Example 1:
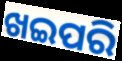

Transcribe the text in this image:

ଖଇପରି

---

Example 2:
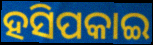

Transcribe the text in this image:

ହସିପକାଇ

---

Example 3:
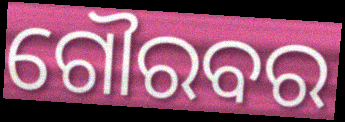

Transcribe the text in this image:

ଗୌରବର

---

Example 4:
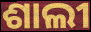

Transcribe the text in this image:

ଶାଲୀ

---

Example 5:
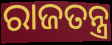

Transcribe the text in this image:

ରାଜତନ୍ତ୍ର